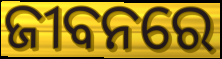
ଜୀବନରେ